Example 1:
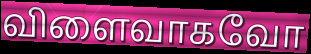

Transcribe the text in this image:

விளைவாகவோ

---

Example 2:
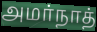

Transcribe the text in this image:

அமர்நாத்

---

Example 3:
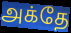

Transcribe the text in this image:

அக்தே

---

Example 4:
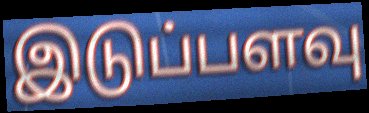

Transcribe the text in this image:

இடுப்பளவு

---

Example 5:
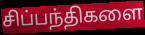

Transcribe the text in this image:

சிப்பந்திகளை